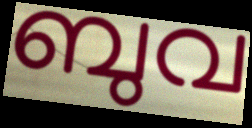
ബുവ